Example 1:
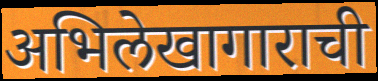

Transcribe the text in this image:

अभिलेखागाराची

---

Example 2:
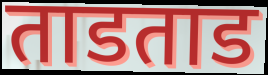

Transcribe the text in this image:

ताडताड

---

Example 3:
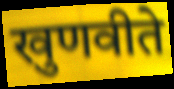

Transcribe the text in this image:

खुणवीते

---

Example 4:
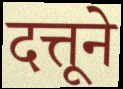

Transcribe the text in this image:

दत्तूने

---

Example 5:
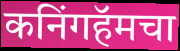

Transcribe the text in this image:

कनिंगहॅमचा